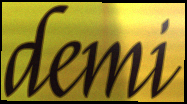
demi